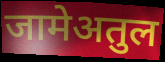
जामेअतुल